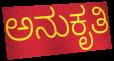
ಅನುಕೃತಿ